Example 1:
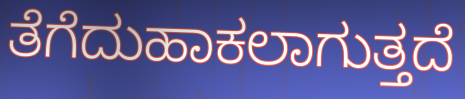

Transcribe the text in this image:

ತೆಗೆದುಹಾಕಲಾಗುತ್ತದೆ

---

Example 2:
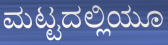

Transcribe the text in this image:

ಮಟ್ಟದಲ್ಲಿಯೂ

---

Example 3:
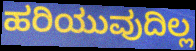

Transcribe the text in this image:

ಹರಿಯುವುದಿಲ್ಲ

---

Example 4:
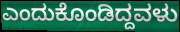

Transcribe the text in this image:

ಎಂದುಕೊಂಡಿದ್ದವಳು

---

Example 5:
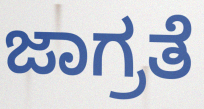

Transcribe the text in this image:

ಜಾಗ್ರತೆ